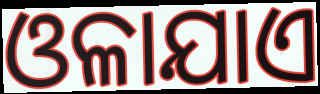
ଓଳାଯାଏ